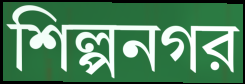
শিল্পনগর